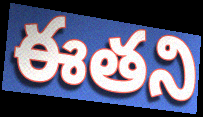
ఈతని